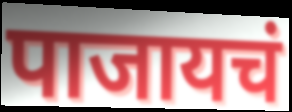
पाजायचं